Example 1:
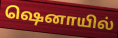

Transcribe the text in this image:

ஷெனாயில்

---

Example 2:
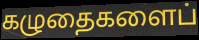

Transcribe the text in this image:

கழுதைகளைப்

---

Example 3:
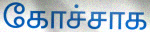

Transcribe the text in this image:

கோச்சாக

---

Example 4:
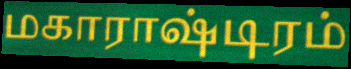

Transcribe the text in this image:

மகாராஷ்டிரம்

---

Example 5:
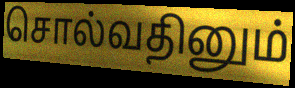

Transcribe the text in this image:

சொல்வதினும்